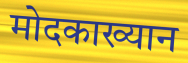
मोदकाख्यान